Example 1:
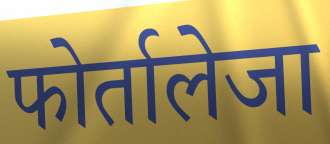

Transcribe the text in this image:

फोर्तालेजा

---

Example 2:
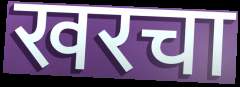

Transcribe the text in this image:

खरचा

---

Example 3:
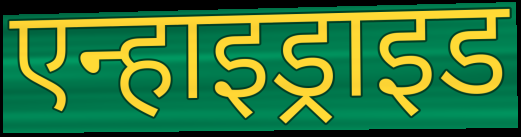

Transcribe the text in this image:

एन्हाइड्राइड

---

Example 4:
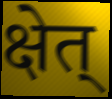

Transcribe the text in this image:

क्षेत्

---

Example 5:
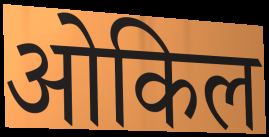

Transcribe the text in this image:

ओकिल